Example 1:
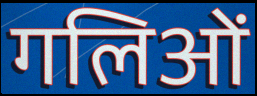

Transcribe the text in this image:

गलिओं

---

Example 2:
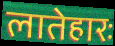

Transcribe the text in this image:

लातेहारः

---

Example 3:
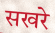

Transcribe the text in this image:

सखरे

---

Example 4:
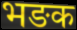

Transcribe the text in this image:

भङक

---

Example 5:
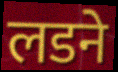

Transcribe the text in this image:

लडने